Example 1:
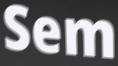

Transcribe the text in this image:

Sem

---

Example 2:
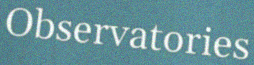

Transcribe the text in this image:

Observatories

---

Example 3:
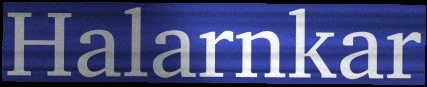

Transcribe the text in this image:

Halarnkar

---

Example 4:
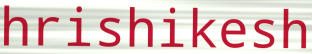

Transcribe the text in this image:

hrishikesh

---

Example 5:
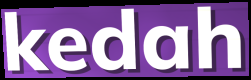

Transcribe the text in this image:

kedah